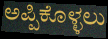
ಅಪ್ಪಿಕೊಳ್ಳಲು